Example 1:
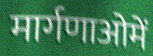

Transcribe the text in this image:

मार्गणाओमें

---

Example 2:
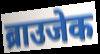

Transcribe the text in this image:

ब्राउजेक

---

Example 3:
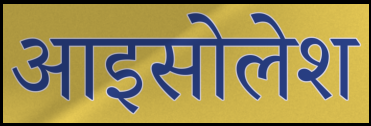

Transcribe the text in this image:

आइसोलेश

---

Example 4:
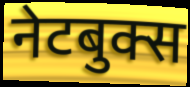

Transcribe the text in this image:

नेटबुक्स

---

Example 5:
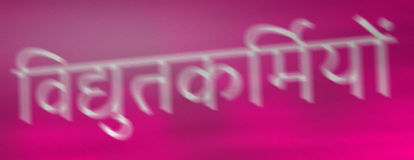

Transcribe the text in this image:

विद्युतकर्मियों